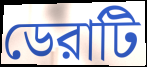
ডেরাটি